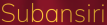
Subansiri